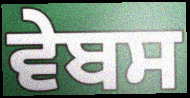
ਵੇਬਸ